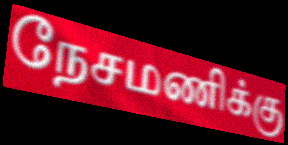
நேசமணிக்கு